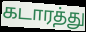
கடாரத்து